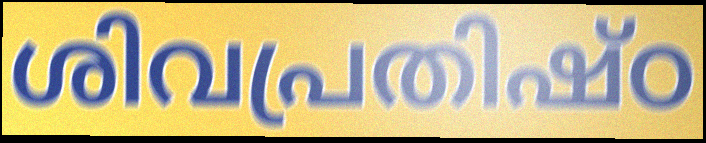
ശിവപ്രതിഷ്ഠ